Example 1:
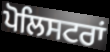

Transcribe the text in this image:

ਪੋਲਿਸਟਰਾਂ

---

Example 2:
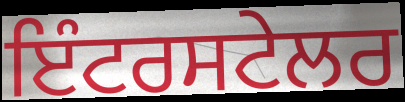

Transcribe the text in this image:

ਇੰਟਰਸਟੇਲਰ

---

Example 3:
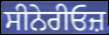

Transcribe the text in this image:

ਸੀਨੇਰੀਓਜ਼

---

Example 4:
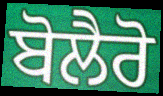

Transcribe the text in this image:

ਬੋਲੈਰੋ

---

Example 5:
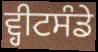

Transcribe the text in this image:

ਵ੍ਹੀਟਸੰਡੇ